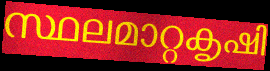
സ്ഥലമാറ്റകൃഷി